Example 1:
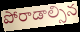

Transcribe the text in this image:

పోరాడాల్సిన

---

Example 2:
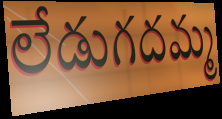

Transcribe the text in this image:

లేడుగదమ్మ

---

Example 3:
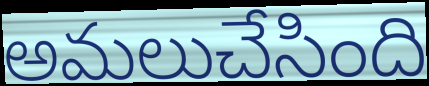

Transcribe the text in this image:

అమలుచేసింది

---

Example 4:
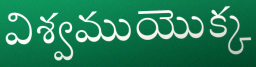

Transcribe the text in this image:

విశ్వముయొక్క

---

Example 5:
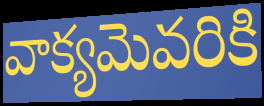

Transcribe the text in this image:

వాక్యమెవరికి